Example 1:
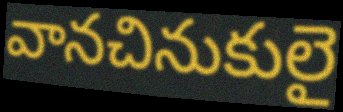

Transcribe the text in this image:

వానచినుకులై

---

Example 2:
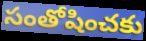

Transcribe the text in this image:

సంతోషించకు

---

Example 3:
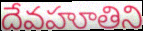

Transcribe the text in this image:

దేవహూతిని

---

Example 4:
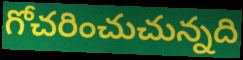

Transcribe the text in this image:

గోచరించుచున్నది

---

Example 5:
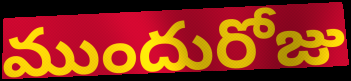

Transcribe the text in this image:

ముందురోజు